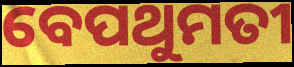
ବେପଥୁମତୀ